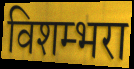
विशम्भरा